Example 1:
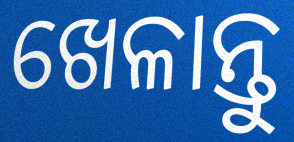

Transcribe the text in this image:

ଖେଳାନ୍ତୁ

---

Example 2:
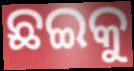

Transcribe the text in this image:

ଛଇକୁ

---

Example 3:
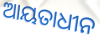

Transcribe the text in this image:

ଆୟତାଧୀନ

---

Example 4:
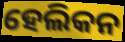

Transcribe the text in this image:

ହେଲିକନ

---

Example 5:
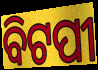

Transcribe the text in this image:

ବିଟପୀ